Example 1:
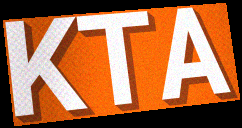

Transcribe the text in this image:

KTA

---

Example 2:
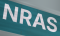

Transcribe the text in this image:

NRAS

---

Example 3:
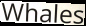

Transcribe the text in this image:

Whales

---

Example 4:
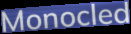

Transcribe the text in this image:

Monocled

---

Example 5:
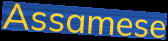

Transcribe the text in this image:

Assamese